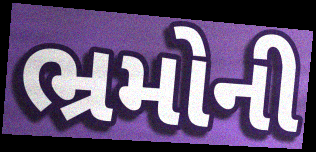
ભ્રમોની